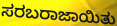
ಸರಬರಾಜಾಯಿತು